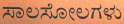
ಸಾಲಸೋಲಗಳು